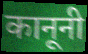
कानूनी